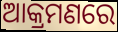
ଆକ୍ରମଣରେ